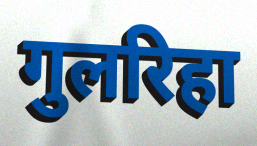
गुलरिहा